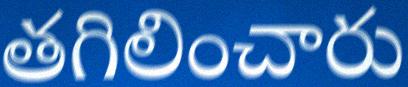
తగిలించారు